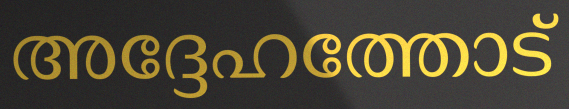
അദ്ദേഹത്തോട്